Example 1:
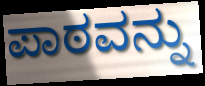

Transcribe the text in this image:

ಪಾಠವನ್ನು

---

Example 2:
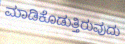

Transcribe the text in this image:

ಮಾಡಿಕೊಡುತ್ತಿರುವುದು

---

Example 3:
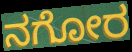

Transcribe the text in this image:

ನಗೋರ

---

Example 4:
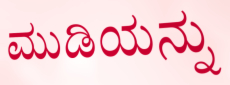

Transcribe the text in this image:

ಮುಡಿಯನ್ನು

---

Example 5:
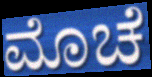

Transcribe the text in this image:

ಮೊಚೆ